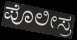
ಪೊಲೀಸ್ರ